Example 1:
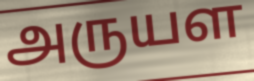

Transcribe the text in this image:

அருயள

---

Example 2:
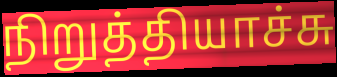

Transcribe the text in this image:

நிறுத்தியாச்சு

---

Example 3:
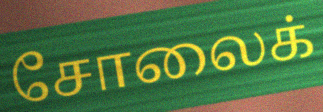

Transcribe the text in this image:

சோலைக்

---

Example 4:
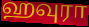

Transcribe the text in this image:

ஹவுரா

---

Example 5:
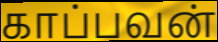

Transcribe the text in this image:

காப்பவன்